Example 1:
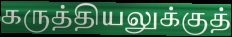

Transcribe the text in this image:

கருத்தியலுக்குத்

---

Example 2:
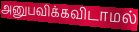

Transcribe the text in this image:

அனுபவிக்கவிடாமல்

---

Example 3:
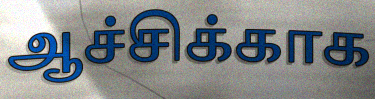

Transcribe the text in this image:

ஆச்சிக்காக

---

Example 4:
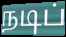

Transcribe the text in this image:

நடிப்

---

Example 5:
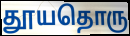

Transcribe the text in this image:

தூயதொரு